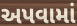
અપવામાં